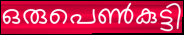
ഒരുപെൺകുട്ടി